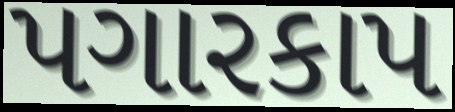
પગારકાપ